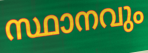
സ്ഥാനവും